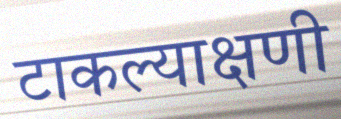
टाकल्याक्षणी